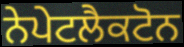
ਨੇਪੇਟਲੈਕਟੋਨ